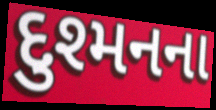
દુશ્મનના